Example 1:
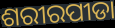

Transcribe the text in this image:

ଶରୀରପୀଡା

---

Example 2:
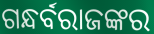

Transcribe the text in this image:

ଗନ୍ଧର୍ବରାଜଙ୍କର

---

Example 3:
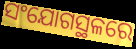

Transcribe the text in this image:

ସଂଯୋଗସ୍ଥଳରେ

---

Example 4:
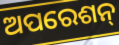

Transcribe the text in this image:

ଅପରେଶନ୍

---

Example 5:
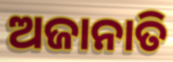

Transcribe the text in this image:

ଅଜାନାତି